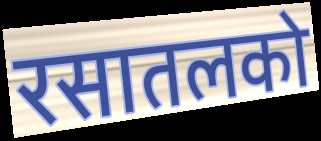
रसातलको